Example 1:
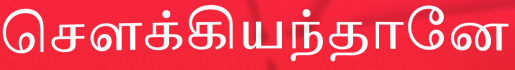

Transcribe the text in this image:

சௌக்கியந்தானே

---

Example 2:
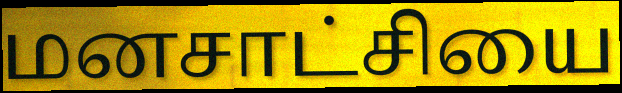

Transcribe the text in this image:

மனசாட்சியை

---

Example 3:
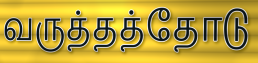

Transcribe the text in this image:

வருத்தத்தோடு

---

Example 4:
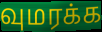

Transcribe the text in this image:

வுமரக்க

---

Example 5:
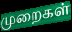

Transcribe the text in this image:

முறைகள்